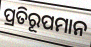
ପ୍ରତିରୂପମାନ